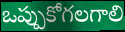
ఒప్పుకోగలగాలి